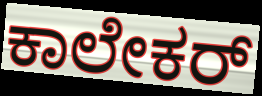
ಕಾಲೇಕರ್